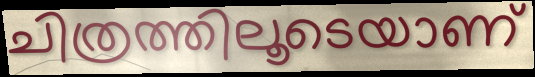
ചിത്രത്തിലൂടെയാണ്